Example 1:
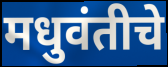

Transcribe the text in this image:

मधुवंतीचे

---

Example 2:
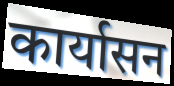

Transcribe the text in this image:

कार्यासन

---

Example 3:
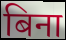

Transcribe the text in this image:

बिना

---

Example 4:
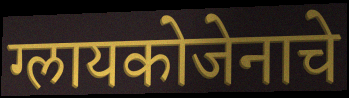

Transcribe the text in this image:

ग्लायकोजेनाचे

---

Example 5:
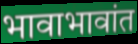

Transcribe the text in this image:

भावाभावांत